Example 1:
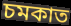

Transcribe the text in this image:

চমকাত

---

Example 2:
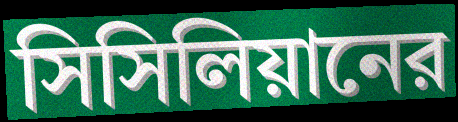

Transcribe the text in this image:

সিসিলিয়ানের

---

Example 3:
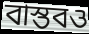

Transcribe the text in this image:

বাস্তবও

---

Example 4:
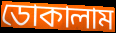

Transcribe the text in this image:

ডোকালাম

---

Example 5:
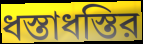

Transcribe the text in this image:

ধস্তাধস্তির